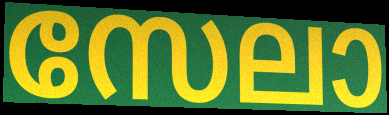
സേലാ